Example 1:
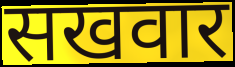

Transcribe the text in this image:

सखवार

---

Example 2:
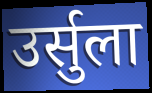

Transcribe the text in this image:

उर्सुला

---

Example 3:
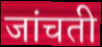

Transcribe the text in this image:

जांचती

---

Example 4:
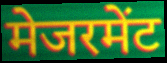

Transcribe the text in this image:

मेजरमेंट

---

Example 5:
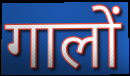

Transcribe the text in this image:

गालों